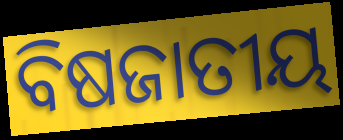
ବିଷଜାତୀୟ